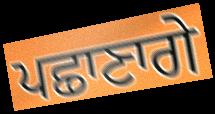
ਪਛਾਣਾਗੇ